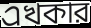
এখকার